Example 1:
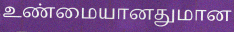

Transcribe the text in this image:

உண்மையானதுமான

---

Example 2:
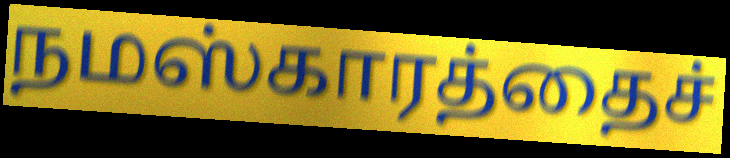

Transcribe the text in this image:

நமஸ்காரத்தைச்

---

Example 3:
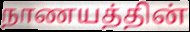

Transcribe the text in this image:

நாணயத்தின்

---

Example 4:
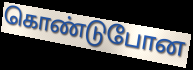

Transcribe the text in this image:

கொண்டுபோன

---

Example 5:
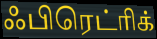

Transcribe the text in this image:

ஃபிரெட்ரிக்